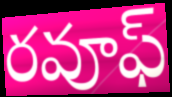
రవూఫ్